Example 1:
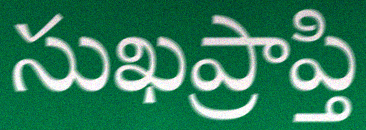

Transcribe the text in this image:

సుఖప్రాప్తి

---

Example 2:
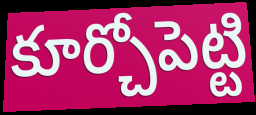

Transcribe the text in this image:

కూర్చోపెట్టి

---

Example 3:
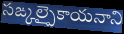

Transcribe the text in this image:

సఙ్కల్పైకాయనాని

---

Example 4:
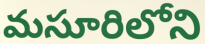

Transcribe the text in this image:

మసూరిలోని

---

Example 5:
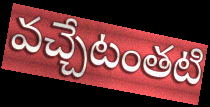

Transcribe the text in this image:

వచ్చేటంతటి